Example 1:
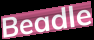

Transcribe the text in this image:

Beadle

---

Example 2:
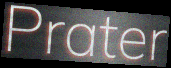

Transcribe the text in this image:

Prater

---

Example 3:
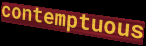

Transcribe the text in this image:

contemptuous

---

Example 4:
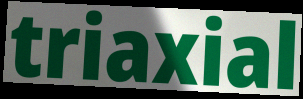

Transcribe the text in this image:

triaxial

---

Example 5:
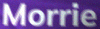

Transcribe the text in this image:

Morrie